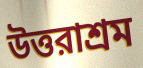
উত্তরাশ্রম